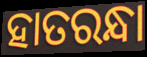
ହାତରନ୍ଧା